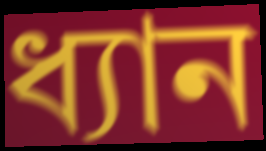
ধ্যান